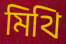
মিথি